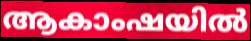
ആകാംഷയിൽ